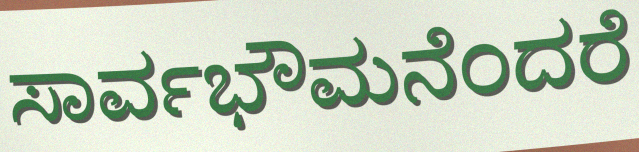
ಸಾರ್ವಭೌಮನೆಂದರೆ